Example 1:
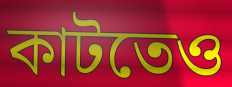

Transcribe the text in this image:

কাটতেও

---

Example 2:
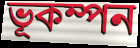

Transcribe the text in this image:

ভূকম্পন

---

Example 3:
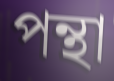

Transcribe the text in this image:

পন্থা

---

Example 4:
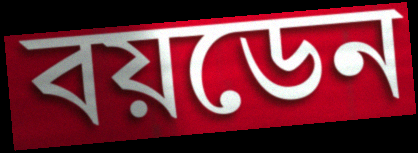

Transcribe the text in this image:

বয়ডেন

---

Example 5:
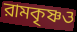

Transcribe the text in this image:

রামকৃষ্ণও